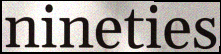
nineties